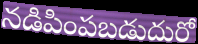
నడిపింపబడుదురో